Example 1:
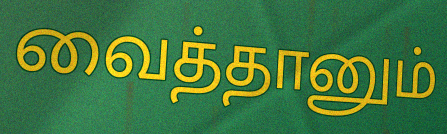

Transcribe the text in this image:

வைத்தானும்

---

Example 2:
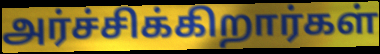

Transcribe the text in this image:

அர்ச்சிக்கிறார்கள்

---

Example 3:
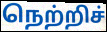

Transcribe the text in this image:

நெற்றிச்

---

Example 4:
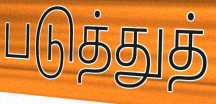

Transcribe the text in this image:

படுத்துத்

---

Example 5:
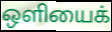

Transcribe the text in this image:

ஒளியைக்